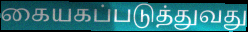
கையகப்படுத்துவது